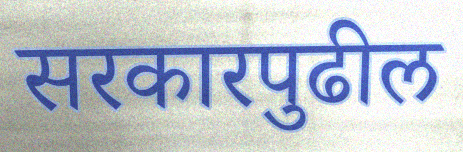
सरकारपुढील